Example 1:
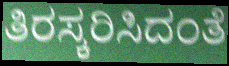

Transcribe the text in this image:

ತಿರಸ್ಕರಿಸಿದಂತೆ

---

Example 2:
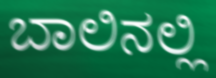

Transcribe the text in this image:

ಬಾಲಿನಲ್ಲಿ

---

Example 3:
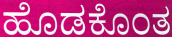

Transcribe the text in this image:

ಹೊಡಕೊಂತ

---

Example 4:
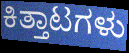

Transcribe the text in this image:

ಕಿತ್ತಾಟಗಳು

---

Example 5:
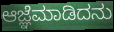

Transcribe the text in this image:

ಆಜ್ಞೆಮಾಡಿದನು